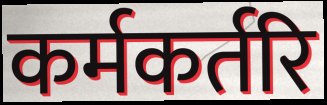
कर्मकर्तरि